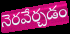
నెరవేర్చడం